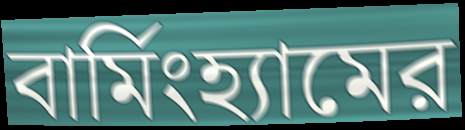
বার্মিংহ্যামের